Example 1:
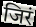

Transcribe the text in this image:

जिरं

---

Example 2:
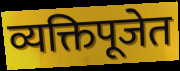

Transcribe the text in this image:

व्यक्तिपूजेत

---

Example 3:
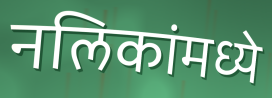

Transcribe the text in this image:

नलिकांमध्ये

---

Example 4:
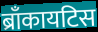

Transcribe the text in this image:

ब्राँकायटिस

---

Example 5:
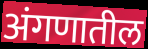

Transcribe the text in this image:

अंगणातील